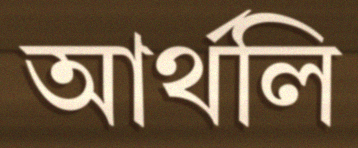
আর্থলি